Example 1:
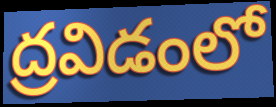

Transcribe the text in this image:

ద్రవిడంలో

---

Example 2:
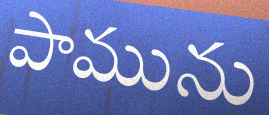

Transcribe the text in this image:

పామును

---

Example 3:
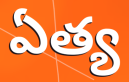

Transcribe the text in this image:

ఏత్య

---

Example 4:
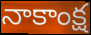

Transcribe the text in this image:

నాకాంక్ష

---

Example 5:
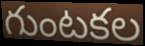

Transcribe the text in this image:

గుంటకల